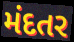
મંદતર